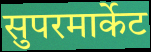
सुपरमार्केट